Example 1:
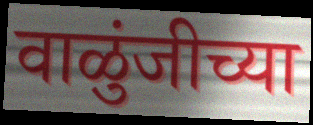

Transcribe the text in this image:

वाळुंजीच्या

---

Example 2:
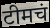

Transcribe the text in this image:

टीमचं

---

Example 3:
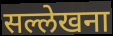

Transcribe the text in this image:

सल्लेखना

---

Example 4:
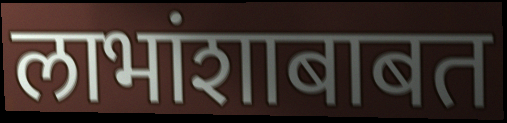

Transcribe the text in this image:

लाभांशाबाबत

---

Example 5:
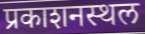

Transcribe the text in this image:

प्रकाशनस्थल